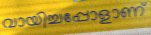
വായിച്ചപ്പോളാണ്